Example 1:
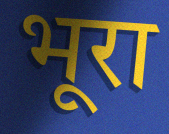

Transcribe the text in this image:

भूरा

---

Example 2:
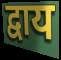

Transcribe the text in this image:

द्वाय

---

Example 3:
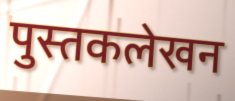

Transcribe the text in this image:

पुस्तकलेखन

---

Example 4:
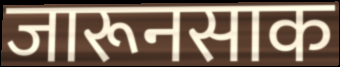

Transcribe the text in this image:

जारूनसाक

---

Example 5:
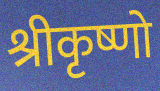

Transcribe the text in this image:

श्रीकृष्णो